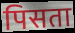
पिसता